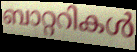
ബാറ്ററികൾ